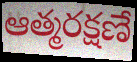
ఆత్మరక్షణే